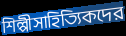
শিল্পীসাহিত্যিকদের